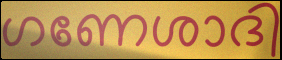
ഗണേശാദി